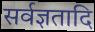
सर्वज्ञतादि